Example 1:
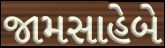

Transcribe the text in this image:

જામસાહેબે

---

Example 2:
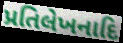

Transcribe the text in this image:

પ્રતિલેખનાદિ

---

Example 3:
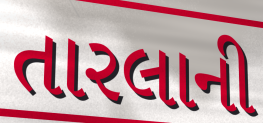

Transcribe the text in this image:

તારલાની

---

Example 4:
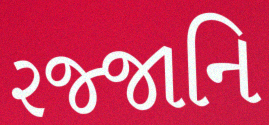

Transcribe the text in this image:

રજ્જાનિ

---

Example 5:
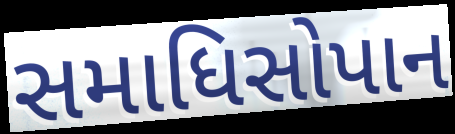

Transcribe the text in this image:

સમાધિસોપાન